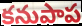
కనుపాప